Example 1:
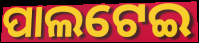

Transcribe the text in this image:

ପାଲଟେଇ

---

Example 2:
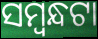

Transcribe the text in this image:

ସମ୍ବନ୍ଧଟା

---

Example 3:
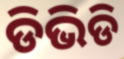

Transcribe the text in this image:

ଡିଭିଡି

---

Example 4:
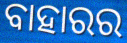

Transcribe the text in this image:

ବାହାରର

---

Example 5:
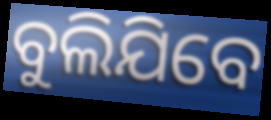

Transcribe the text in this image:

ବୁଲିଯିବେ